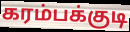
கரம்பக்குடி